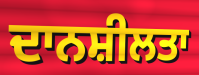
ਦਾਨਸ਼ੀਲਤਾ